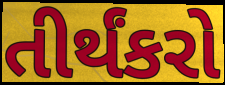
તીર્થંકરો